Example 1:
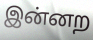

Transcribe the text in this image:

இன்னற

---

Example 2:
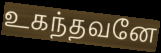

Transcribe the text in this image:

உகந்தவனே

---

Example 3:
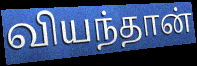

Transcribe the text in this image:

வியந்தான்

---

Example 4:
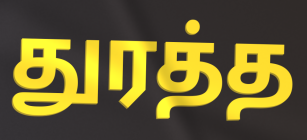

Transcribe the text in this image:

துரத்த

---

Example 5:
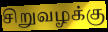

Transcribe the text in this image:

சிறுவழக்கு